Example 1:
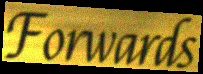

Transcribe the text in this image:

Forwards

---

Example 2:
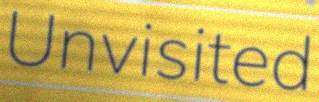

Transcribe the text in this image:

Unvisited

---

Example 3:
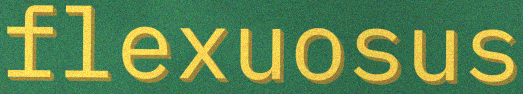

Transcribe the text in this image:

flexuosus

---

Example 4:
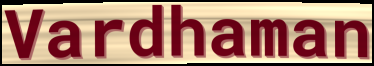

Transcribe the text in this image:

Vardhaman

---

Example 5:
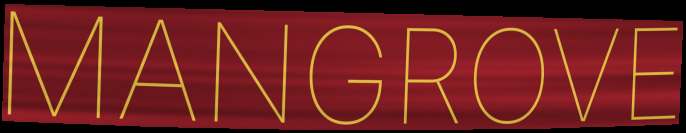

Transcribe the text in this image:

MANGROVE